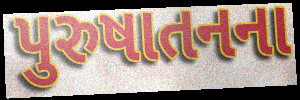
પુરુષાતનના